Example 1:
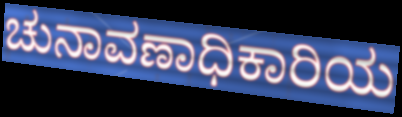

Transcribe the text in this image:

ಚುನಾವಣಾಧಿಕಾರಿಯ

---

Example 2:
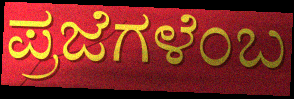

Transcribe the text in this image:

ಪ್ರಜೆಗಳೆಂಬ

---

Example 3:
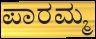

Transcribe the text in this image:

ಪಾರಮ್ಮ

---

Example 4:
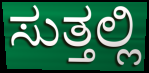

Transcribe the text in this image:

ಸುತ್ತಲ್ಲಿ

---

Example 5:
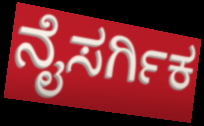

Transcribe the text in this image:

ನೈಸರ್ಗಿಕ